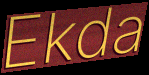
Ekda